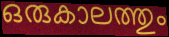
ഒരുകാലത്തും